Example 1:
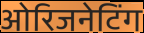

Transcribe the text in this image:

ओरिजनेटिंग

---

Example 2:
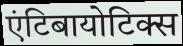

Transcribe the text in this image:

एंटिबायोटिक्स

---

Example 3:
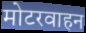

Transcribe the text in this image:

मोटरवाहन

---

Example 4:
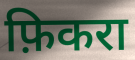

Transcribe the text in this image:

फ़िकरा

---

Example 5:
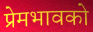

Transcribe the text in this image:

प्रेमभावको